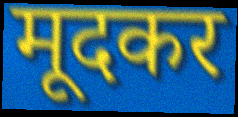
मूदकर